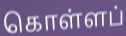
கொள்ளப்